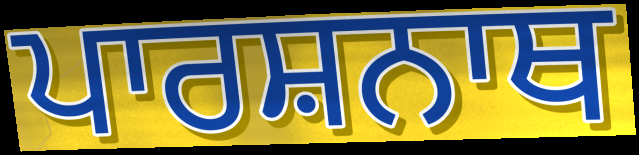
ਪਾਰਸ਼ਨਾਥ